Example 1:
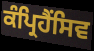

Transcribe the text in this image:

ਕੰਪ੍ਰਿਹੈਂਸਿਵ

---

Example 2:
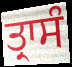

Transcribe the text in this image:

ਤ੍ਰਾਸੰ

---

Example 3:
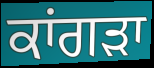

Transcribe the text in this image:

ਕਾਂਗਡ਼ਾ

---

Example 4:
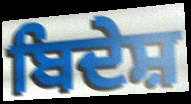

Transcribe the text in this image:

ਬਿਦੇਸ਼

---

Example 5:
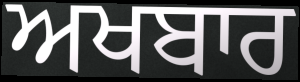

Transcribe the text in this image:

ਅਖਬਾਰ